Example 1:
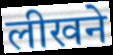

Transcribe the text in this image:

लीखने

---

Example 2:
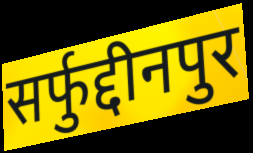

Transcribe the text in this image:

सर्फुद्दीनपुर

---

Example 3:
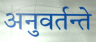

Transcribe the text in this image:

अनुवर्तन्ते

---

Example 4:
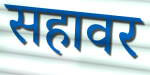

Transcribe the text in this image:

सहावर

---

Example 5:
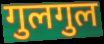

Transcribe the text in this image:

गुलगुल